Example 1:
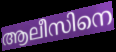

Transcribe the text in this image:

ആലീസിനെ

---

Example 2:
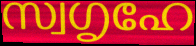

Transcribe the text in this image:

സ്വഗൃഹേ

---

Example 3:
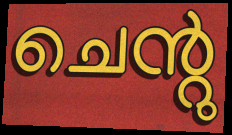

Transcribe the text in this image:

ചെന്റു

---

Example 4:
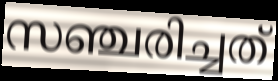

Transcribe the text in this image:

സഞ്ചരിച്ചത്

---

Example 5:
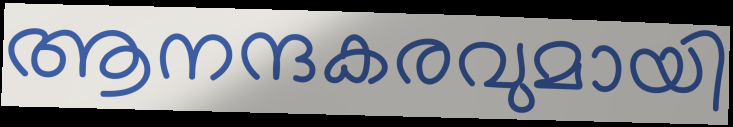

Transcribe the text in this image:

ആനന്ദകരവുമായി